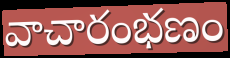
వాచారంభణం